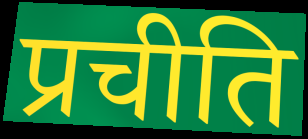
प्रचीति